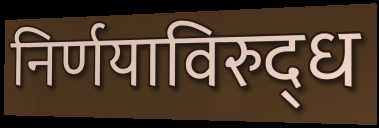
निर्णयाविरुद्ध